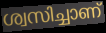
ശ്വസിച്ചാണ്